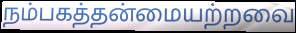
நம்பகத்தன்மையற்றவை